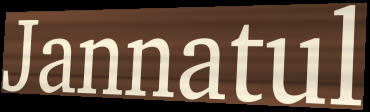
Jannatul